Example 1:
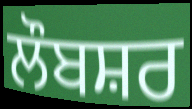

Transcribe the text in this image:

ਲੌਬਸ਼ਰ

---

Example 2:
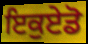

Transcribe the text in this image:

ਇਕੁਏਡੋ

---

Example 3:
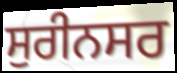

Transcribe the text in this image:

ਸੁਰੀਨਸਰ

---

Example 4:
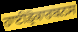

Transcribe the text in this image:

ਹਾਈਡ੍ਰੋਕਾਰਬਨਸ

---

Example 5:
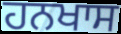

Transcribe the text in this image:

ਹਨਖਾਸ